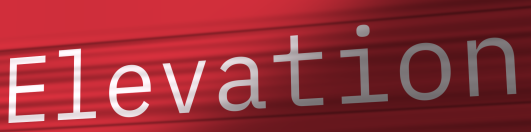
Elevation